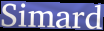
Simard